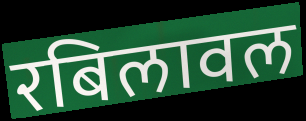
रबिलावल